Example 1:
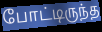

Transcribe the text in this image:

போட்டிருந்த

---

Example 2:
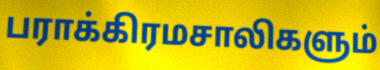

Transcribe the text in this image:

பராக்கிரமசாலிகளும்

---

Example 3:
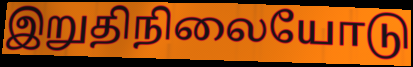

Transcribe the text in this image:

இறுதிநிலையோடு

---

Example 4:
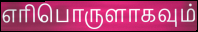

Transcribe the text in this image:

எரிபொருளாகவும்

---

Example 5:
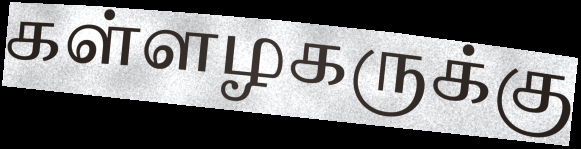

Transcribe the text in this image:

கள்ளழகருக்கு